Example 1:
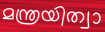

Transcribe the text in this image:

മന്ത്രയിത്വാ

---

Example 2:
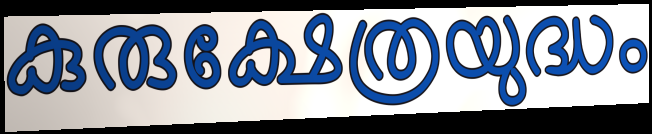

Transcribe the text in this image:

കുരുക്ഷേത്രയുദ്ധം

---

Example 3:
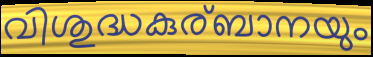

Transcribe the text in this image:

വിശുദ്ധകുര്ബാനയും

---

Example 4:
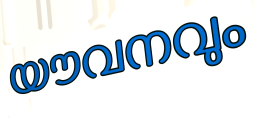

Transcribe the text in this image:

യൗവനവും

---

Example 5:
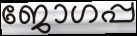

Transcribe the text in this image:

ജോഗപ്പ